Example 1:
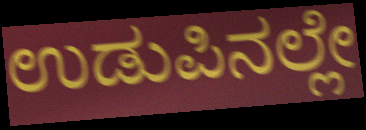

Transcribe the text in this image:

ಉಡುಪಿನಲ್ಲೇ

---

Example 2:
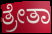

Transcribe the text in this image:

ತ್ರೇತಾ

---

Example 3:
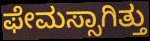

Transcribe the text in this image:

ಫೇಮಸ್ಸಾಗಿತ್ತು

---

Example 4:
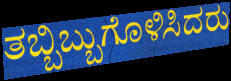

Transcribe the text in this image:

ತಬ್ಬಿಬ್ಬುಗೊಳಿಸಿದರು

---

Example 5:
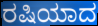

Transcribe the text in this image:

ರಷಿಯಾದ